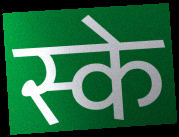
स्के